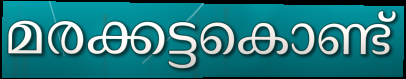
മരക്കട്ടകൊണ്ട്